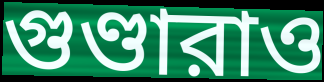
গুণ্ডারাও